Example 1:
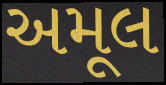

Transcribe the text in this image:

અમૂલ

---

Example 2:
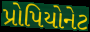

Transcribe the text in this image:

પ્રોપિયોનેટ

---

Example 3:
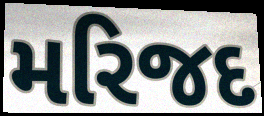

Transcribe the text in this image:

મરિજદ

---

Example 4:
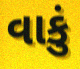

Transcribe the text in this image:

વાકું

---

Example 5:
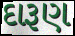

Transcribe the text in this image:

દારૂણ